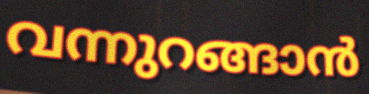
വന്നുറങ്ങാൻ